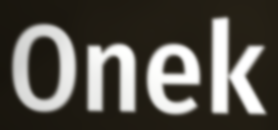
Onek